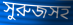
সুরুজসহ